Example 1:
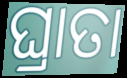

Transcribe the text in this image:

ଘ୍ରାତା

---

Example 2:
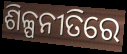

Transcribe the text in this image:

ଶିଳ୍ପନୀତିରେ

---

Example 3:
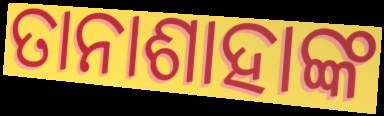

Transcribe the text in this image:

ତାନାଶାହାଙ୍କ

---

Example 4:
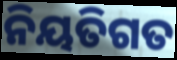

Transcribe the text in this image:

ନିୟତିଗତ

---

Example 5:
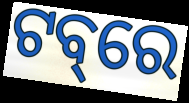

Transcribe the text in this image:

ଟବ୍‌ରେ